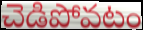
చెడిపోవటం